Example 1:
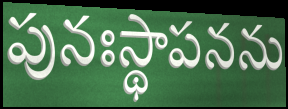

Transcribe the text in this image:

పునఃస్థాపనను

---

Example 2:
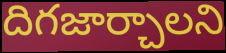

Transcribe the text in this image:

దిగజార్చాలని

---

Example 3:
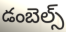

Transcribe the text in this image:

డంబెల్స్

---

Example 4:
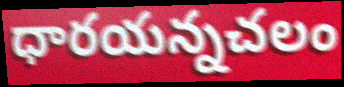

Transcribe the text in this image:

ధారయన్నచలం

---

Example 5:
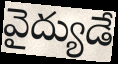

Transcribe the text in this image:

వైద్యుడే